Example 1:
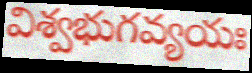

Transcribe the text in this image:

విశ్వభుగవ్యయః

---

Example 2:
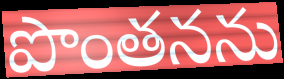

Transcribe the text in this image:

పొంతనను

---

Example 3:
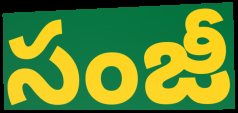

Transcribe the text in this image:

సంజీ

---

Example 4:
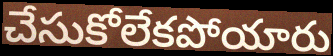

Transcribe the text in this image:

చేసుకోలేకపోయారు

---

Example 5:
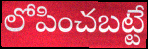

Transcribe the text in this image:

లోపించబట్టే